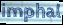
imphal